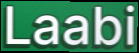
Laabi